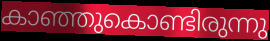
കാഞ്ഞുകൊണ്ടിരുന്നു